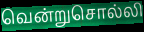
வென்றுசொல்லி